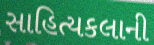
સાહિત્યકલાની